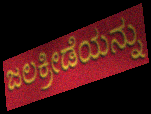
ಜಲಕ್ರೀಡೆಯನ್ನು